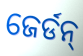
ଜେର୍ଡନ୍